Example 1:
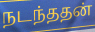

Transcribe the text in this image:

நடந்ததன்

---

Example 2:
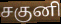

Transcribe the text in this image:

சகுனி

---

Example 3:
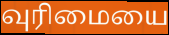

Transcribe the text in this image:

வுரிமையை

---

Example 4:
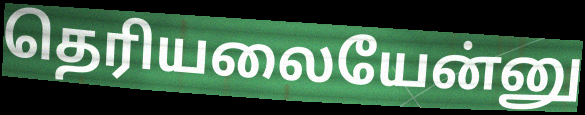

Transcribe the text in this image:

தெரியலையேன்னு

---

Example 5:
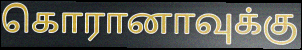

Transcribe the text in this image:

கொரானாவுக்கு